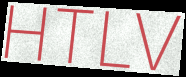
HTLV